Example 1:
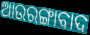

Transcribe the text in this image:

ଆଉରଙ୍ଗାବାଦ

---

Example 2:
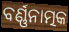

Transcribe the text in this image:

ବର୍ଣ୍ଣନାତ୍ମକ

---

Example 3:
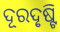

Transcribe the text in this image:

ଦୂରଦୃଷ୍ଟି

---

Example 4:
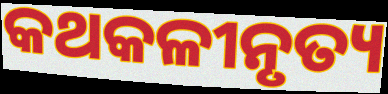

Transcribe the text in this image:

କଥକଳୀନୃତ୍ୟ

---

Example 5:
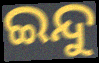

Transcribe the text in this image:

ଇନ୍ଦୁ